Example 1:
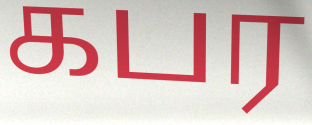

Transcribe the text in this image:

கபர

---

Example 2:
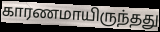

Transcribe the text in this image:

காரணமாயிருந்தது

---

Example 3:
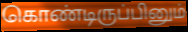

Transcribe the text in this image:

கொண்டிருப்பினும்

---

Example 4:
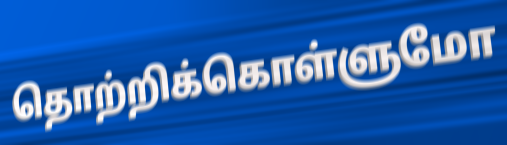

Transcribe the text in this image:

தொற்றிக்கொள்ளுமோ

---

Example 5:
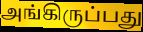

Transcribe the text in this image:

அங்கிருப்பது